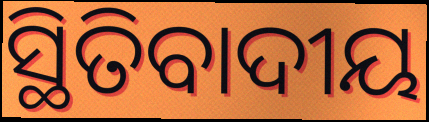
ସ୍ଥିତିବାଦୀୟ